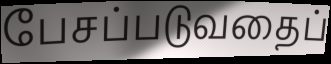
பேசப்படுவதைப்